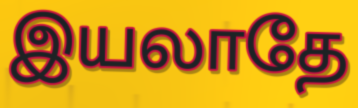
இயலாதே